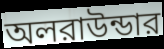
অলরাউন্ডার